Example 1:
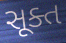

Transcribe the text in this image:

સૂક્ત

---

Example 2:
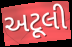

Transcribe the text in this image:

અટૂલી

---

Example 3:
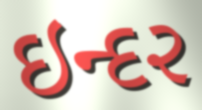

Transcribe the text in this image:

ઇન્દર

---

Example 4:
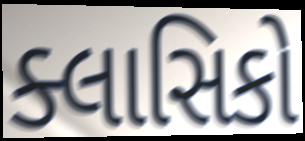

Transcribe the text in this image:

ક્લાસિકો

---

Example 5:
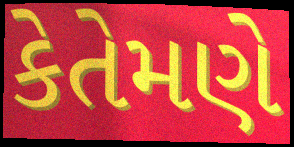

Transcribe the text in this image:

કેતેમણે